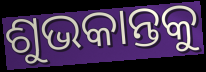
ଶୁଭକାନ୍ତକୁ